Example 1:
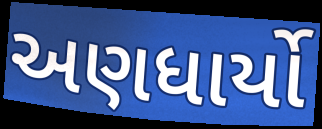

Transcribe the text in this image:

અણધાર્યો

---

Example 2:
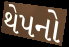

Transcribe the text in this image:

થેપનો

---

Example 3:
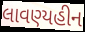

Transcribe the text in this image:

લાવણ્યહીન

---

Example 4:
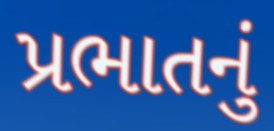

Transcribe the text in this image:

પ્રભાતનું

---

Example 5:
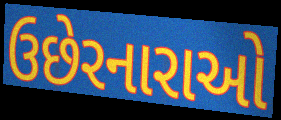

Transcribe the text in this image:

ઉછેરનારાઓ